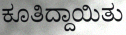
ಕೂತಿದ್ದಾಯಿತು